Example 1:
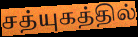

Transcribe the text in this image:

சத்யுகத்தில்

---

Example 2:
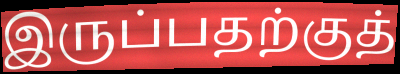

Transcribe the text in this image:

இருப்பதற்குத்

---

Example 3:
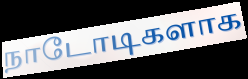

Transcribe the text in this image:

நாடோடிகளாக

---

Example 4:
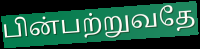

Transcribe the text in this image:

பின்பற்றுவதே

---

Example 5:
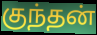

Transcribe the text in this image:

குந்தன்